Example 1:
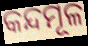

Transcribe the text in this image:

କନ୍ଦମୂଳ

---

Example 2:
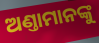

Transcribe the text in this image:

ଅଣ୍ତାମାନଙ୍କୁ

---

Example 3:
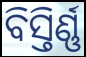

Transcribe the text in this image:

ବିସ୍ତିର୍ଣ୍ଣ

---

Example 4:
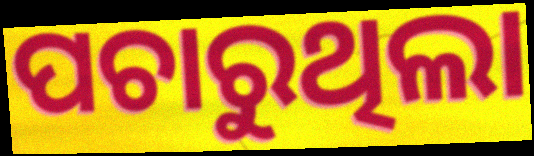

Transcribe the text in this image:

ପଚାରୁଥିଲା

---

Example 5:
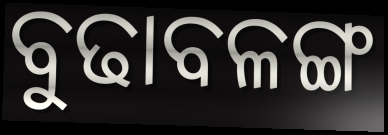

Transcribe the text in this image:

ବୁଢାବଳଙ୍ଗ